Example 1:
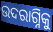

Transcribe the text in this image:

ଉଦରାଗ୍ନିକୁ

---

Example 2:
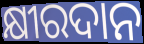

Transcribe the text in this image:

କ୍ଷୀରଦାନ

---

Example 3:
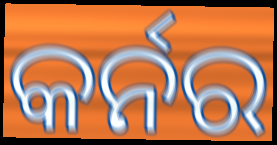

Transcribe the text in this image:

କର୍ନର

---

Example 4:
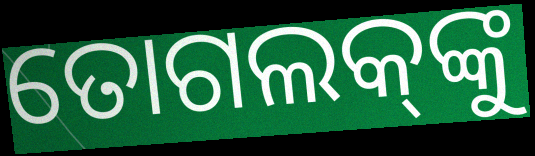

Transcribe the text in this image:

ତୋଗଲକ୍‌ଙ୍କୁ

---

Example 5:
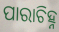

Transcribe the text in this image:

ପାରାଚିହ୍ନ